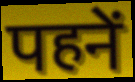
पहनें